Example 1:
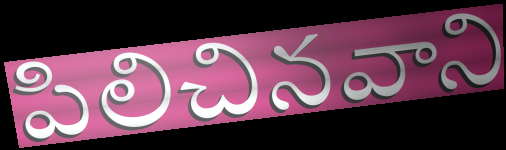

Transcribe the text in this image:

పిలిచినవాని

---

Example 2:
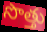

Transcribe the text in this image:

సొత్తు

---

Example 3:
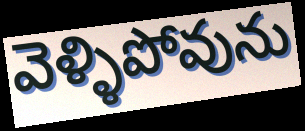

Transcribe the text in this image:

వెళ్ళిపోవును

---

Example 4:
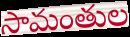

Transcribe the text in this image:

సామంతుల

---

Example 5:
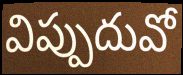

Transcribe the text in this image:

విప్పుదువో